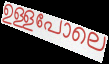
ഉള്ളപോലെ